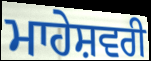
ਮਾਹੇਸ਼ਵਰੀ